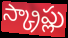
స్క్రాప్లు